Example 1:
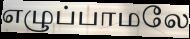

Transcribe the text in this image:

எழுப்பாமலே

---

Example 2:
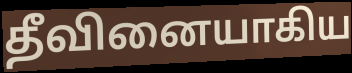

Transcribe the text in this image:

தீவினையாகிய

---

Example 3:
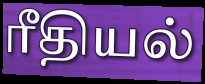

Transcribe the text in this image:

ரீதியல்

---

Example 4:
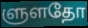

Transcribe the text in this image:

ளுளதோ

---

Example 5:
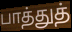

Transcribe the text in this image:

பாத்துத்